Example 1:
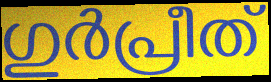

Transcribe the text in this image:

ഗുർപ്രീത്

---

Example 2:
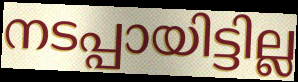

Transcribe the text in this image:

നടപ്പായിട്ടില്ല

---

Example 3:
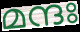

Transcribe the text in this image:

മന്ദഃ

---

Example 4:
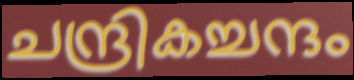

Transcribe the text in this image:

ചന്ദ്രികച്ചന്ദം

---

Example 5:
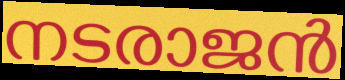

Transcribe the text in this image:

നടരാജൻ